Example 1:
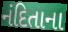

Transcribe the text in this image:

નંદિતાના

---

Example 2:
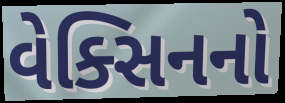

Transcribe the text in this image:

વેક્સિનનો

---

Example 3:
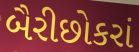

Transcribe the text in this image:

બૈરીછોકરાં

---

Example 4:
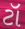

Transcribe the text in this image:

ટૉ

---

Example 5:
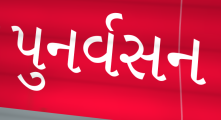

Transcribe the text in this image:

પુનર્વસન